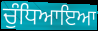
ਚੁੰਧਿਆਇਆ